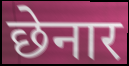
छेनार